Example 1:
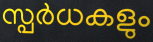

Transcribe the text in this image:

സ്പർധകളും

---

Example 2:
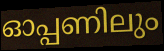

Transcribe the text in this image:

ഓപ്പണിലും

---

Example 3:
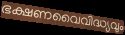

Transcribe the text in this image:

ഭക്ഷണവൈവിദ്ധ്യവും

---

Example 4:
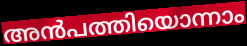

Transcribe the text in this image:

അൻപത്തിയൊന്നാം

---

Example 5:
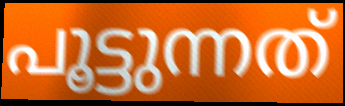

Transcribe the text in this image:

പൂട്ടുന്നത്